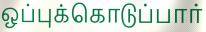
ஒப்புக்கொடுப்பார்